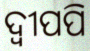
ଦ୍ବୀପପି